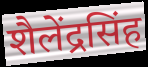
शैलेंद्रसिंह